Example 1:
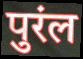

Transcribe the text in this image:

पुरंल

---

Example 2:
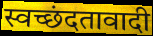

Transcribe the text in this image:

स्वच्छंदतावादी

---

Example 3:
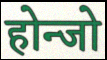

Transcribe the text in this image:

होन्जो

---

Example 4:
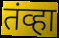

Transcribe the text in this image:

तंव्हा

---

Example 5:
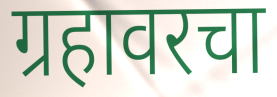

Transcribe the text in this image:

ग्रहावरचा